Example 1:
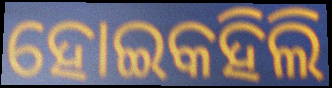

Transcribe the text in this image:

ହୋଇକହିଲି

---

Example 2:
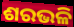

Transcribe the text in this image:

ଶରଭଳି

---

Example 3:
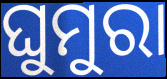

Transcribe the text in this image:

ଘୁମୁରା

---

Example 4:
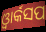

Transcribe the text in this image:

ଓ୍ୱାର୍କସପ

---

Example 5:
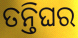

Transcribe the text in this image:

ତନ୍ତିଘର